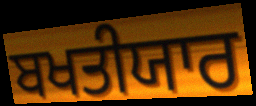
ਬਖਤੀਯਾਰ